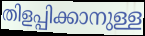
തിളപ്പിക്കാനുള്ള